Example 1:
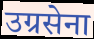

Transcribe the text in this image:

उग्रसेना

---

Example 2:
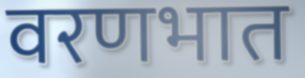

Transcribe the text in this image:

वरणभात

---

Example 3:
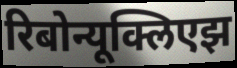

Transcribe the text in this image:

रिबोन्यूक्लिएझ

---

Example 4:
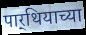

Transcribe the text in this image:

पार्थियाच्या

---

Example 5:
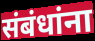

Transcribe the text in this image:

संबंधांना